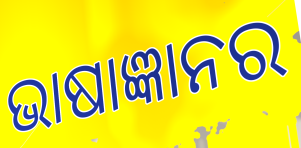
ଭାଷାଜ୍ଞାନର